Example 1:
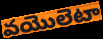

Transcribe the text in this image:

వయొలెటా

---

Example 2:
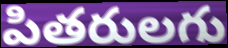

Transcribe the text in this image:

పితరులగు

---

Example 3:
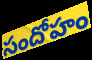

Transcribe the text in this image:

సందోహం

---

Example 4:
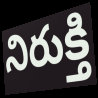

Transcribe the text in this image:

నిరుక్తి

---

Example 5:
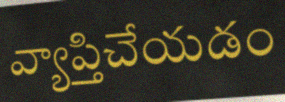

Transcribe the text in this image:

వ్యాప్తిచేయడం